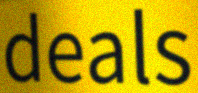
deals